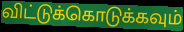
விட்டுக்கொடுக்கவும்